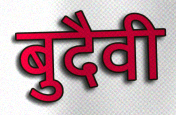
बुदैवी